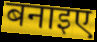
बनाइए